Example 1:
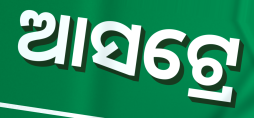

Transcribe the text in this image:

ଆସଟ୍ରେ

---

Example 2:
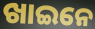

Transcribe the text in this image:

ଖାଇନେ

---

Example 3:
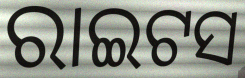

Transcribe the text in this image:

ରାଇଟସ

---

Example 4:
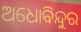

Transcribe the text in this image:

ଅଧୋବିନ୍ଦୁର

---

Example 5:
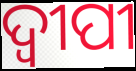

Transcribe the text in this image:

ଦ୍ଵୀପୀ